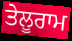
ਤੇਲੂਰਾਮ